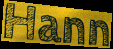
Hann